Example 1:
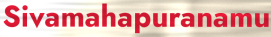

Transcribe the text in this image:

Sivamahapuranamu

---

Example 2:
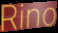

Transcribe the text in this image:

Rino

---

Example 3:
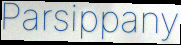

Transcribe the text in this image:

Parsippany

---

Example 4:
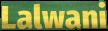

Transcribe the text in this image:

Lalwani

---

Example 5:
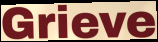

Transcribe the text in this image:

Grieve